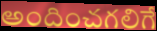
అందించగలిగే